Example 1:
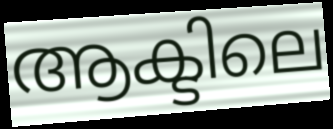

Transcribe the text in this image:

ആക്ടിലെ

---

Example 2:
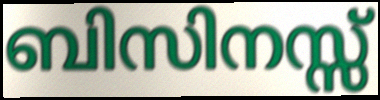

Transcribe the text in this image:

ബിസിനസ്സ്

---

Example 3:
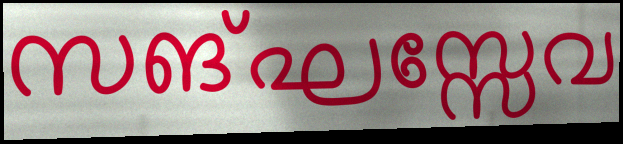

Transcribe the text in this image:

സങ്ഘസ്സേവ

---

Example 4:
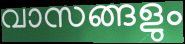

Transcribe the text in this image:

വാസങ്ങളും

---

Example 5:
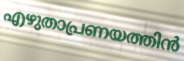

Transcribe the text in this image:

എഴുതാപ്രണയത്തിൻ